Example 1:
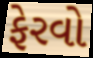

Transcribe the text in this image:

ફેરવો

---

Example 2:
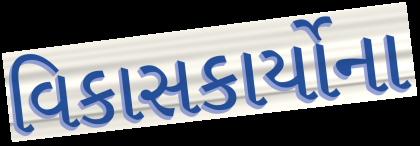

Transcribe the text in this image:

વિકાસકાર્યોના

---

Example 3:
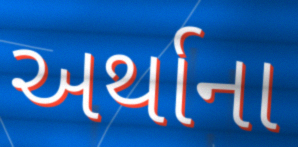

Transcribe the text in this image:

અર્થાના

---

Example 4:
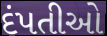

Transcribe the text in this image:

દંપતીઓ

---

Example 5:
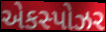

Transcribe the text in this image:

એકસ્પોઝર